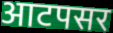
आटपसर